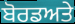
ਬੋਰਡਅਤੇ